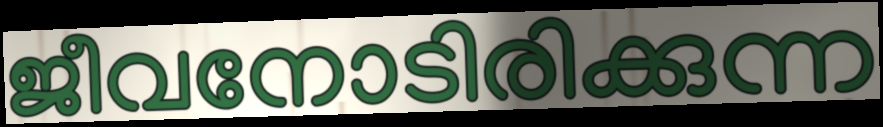
ജീവനോടിരിക്കുന്ന